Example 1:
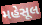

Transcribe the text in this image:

મહેસૂલ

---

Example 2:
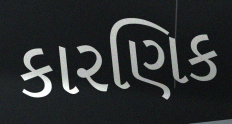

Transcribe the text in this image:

કારણિક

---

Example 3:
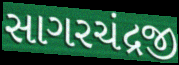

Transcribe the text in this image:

સાગરચંદ્રજી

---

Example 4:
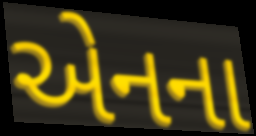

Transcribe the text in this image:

એનના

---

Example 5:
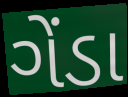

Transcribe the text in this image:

ગેંડા